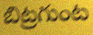
బిట్రగుంట